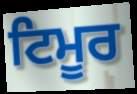
ਟਿਮੂਰ